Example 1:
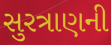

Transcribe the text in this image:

સુરત્રાણની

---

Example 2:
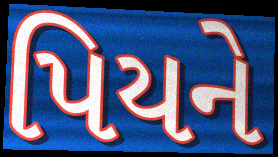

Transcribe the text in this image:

પિયને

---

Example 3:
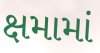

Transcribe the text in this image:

ક્ષમામાં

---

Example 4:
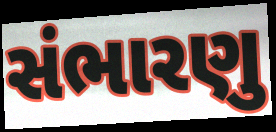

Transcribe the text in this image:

સંભારણુ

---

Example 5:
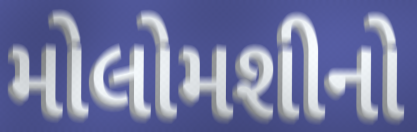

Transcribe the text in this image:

મોલોમશીનો